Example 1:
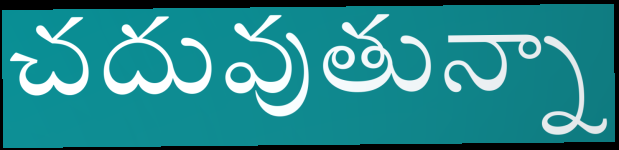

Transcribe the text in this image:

చదువుతున్నా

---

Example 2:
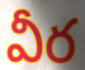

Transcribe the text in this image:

వీర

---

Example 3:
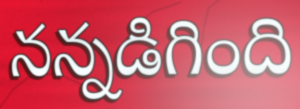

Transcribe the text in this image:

నన్నడిగింది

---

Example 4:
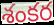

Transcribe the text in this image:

శంకర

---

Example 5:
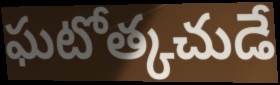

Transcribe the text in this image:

ఘటోత్కచుడే